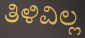
ತಿಳಿವಿಲ್ಲ